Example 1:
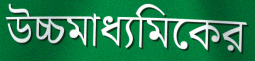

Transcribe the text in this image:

উচ্চমাধ্যমিকের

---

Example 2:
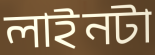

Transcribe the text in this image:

লাইনটা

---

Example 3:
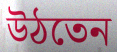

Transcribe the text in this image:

উঠতেন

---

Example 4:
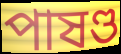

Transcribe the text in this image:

পাষণ্ড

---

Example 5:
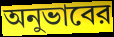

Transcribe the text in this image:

অনুভাবের